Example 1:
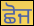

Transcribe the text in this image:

ਛੋਜ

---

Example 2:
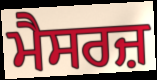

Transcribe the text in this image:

ਮੈਸਰਜ਼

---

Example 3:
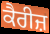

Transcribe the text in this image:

ਕੈਰੀਜ਼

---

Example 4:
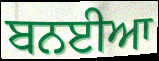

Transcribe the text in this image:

ਬਨਈਆ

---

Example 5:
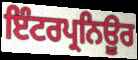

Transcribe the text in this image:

ਇੰਟਰਪ੍ਰਨਿਊਰ